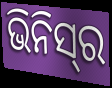
ଭିନିସ୍‌ର